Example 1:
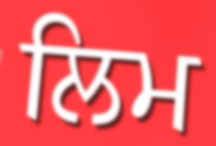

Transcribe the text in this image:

ਲਿਮ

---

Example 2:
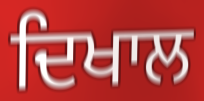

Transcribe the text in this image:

ਦਿਖਾਲ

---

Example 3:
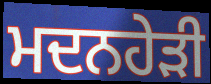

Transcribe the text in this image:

ਮਦਨਹੇੜੀ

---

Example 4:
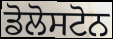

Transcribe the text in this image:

ਡੋਲੋਸਟੋਨ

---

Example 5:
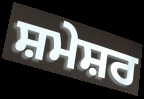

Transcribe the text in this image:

ਸ਼ਮੇਸ਼ਰ